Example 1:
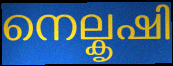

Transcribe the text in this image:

നെല്കൃഷി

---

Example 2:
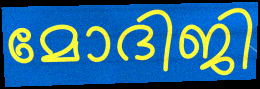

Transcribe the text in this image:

മോദിജി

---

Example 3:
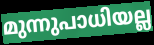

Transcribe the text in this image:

മുന്നുപാധിയല്ല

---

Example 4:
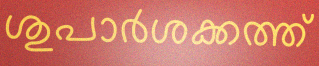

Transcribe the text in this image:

ശുപാർശക്കത്ത്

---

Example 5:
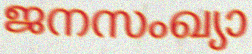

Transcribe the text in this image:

ജനസംഖ്യാ